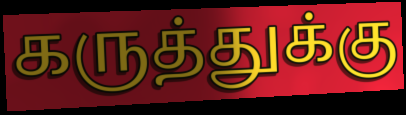
கருத்துக்கு